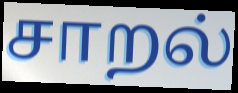
சாறல்